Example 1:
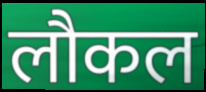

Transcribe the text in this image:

लौकल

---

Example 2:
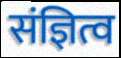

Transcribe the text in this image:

संज्ञित्व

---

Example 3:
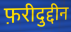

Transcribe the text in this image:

फ़रीदुद्दीन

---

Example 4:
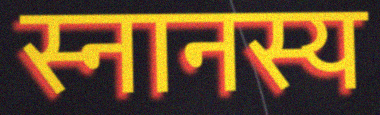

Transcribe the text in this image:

स्नानस्य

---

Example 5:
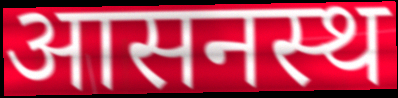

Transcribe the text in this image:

आसनस्थ